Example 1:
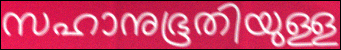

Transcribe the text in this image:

സഹാനുഭൂതിയുള്ള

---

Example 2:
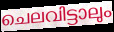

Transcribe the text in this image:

ചെലവിട്ടാലും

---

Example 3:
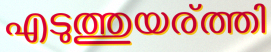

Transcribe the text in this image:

എടുത്തുയര്ത്തി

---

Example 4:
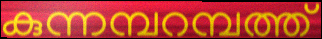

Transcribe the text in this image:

കുന്നമ്പറമ്പത്ത്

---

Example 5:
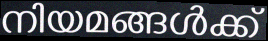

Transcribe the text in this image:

നിയമങ്ങൾക്ക്